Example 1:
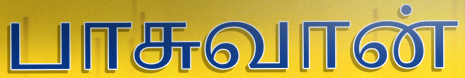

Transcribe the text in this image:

பாசுவான்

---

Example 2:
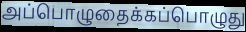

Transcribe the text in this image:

அப்பொழுதைக்கப்பொழுது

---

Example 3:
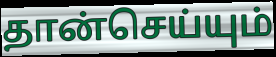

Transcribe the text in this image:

தான்செய்யும்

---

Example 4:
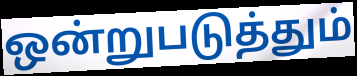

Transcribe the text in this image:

ஒன்றுபடுத்தும்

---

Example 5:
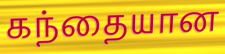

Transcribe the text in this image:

கந்தையான